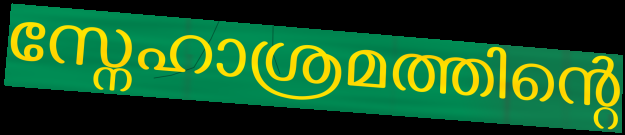
സ്നേഹാശ്രമത്തിന്റെ